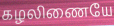
கழலிணையே